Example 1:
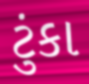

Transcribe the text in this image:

ટુંકા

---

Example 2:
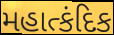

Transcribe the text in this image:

મહાત્કંદિક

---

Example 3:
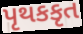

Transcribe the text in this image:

પૃથકકૃત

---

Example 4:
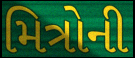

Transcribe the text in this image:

મિત્રોની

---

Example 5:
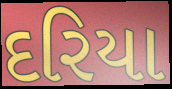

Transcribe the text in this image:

દરિયા